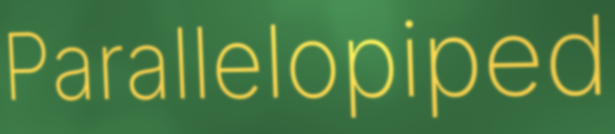
Parallelopiped